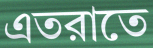
এতরাতে